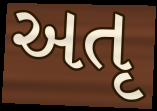
અતૃ